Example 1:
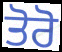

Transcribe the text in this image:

ਤੋਰੋ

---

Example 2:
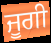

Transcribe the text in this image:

ਜੂਗੀ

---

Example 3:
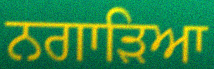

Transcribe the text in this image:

ਨਗਾੜਿਆ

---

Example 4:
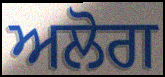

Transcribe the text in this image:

ਅਲੋਗ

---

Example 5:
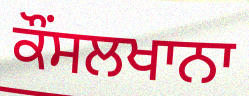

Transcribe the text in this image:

ਕੌਂਸਲਖਾਨਾ